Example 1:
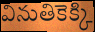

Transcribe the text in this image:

వినుతికెక్కి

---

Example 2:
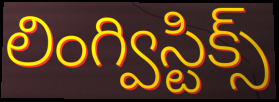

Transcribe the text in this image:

లింగ్విస్టిక్స్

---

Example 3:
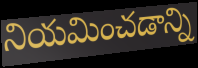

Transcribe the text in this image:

నియమించడాన్ని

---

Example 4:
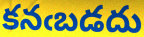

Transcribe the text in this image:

కనఁబడదు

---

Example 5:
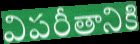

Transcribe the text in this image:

విపరీతానికి